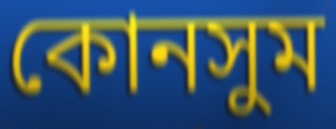
কোনসুম